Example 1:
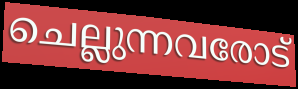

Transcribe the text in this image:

ചെല്ലുന്നവരോട്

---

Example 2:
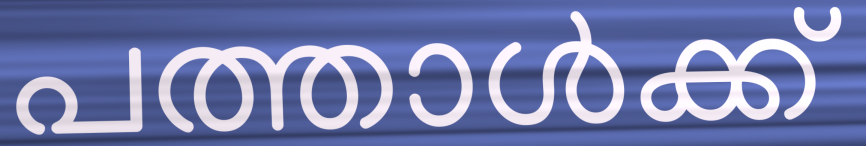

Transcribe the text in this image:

പത്താൾക്ക്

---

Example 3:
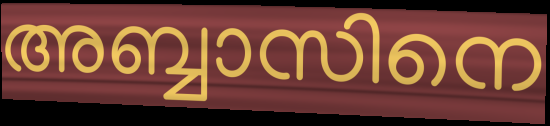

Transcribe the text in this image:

അബ്ബാസിനെ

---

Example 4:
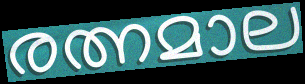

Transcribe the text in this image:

രത്നമാല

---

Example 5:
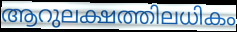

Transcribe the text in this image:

ആറുലക്ഷത്തിലധികം